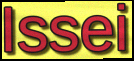
Issei